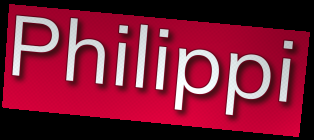
Philippi